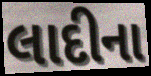
લાદીના